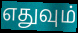
எதுவும்